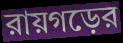
রায়গড়ের